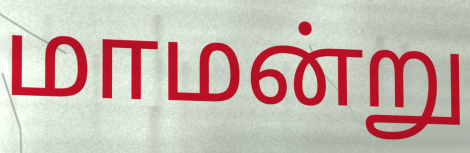
மாமன்று